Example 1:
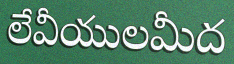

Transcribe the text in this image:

లేవీయులమీద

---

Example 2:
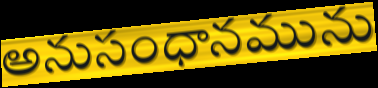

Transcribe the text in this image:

అనుసంధానమును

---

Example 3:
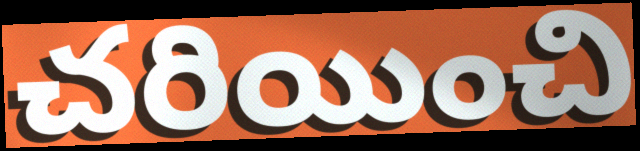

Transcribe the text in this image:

చరియించి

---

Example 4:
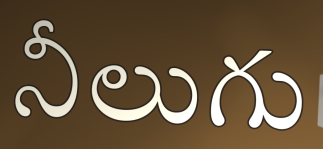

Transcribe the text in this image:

నీలుగు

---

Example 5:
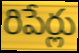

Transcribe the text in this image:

రిపేర్లు